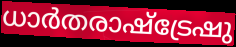
ധാർതരാഷ്ട്രേഷു